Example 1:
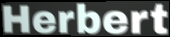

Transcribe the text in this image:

Herbert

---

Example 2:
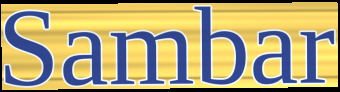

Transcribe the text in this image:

Sambar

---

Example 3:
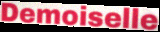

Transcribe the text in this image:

Demoiselle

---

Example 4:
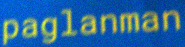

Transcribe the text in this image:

paglanman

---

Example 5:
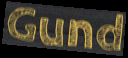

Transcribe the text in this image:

Gund